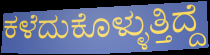
ಕಳೆದುಕೊಳ್ಳುತ್ತಿದ್ದೆ